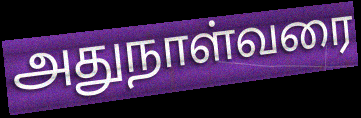
அதுநாள்வரை